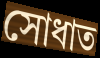
সোধাত